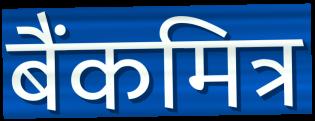
बैंकमित्र